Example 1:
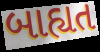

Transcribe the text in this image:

બાહ્યત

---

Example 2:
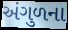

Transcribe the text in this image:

અંગુળના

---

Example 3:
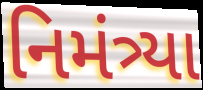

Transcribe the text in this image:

નિમંત્ર્યા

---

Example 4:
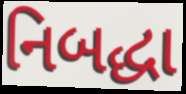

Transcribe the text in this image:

નિબદ્ધા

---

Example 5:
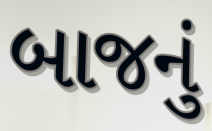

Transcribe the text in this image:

બાજનું